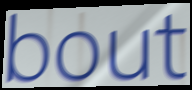
bout